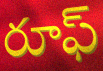
రూఫ్